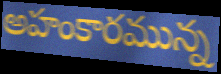
అహంకారమున్న